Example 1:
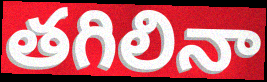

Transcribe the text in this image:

తగిలినా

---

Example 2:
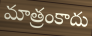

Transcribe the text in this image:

మాత్రంకాదు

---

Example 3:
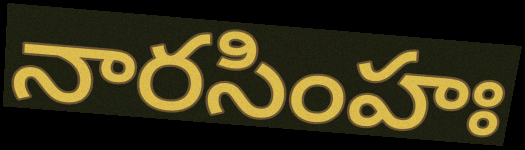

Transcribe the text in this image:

నారసింహః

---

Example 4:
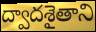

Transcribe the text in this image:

ద్వాదశైతాని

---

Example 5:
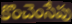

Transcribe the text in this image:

కొంచెంసేపు